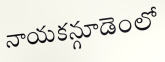
నాయకన్గూడెంలో